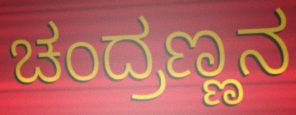
ಚಂದ್ರಣ್ಣನ